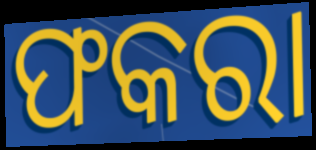
ଫକରା